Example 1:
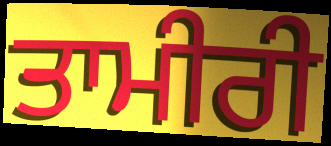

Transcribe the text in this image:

ਤਾਮੀਰੀ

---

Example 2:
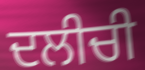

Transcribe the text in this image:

ਦਲੀਚੀ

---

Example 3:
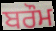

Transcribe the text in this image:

ਬਰੌਮ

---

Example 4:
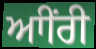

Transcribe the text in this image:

ਆੀਂਰੀ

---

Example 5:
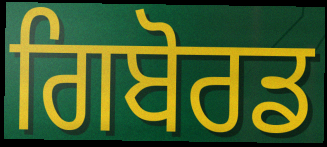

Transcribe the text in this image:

ਗਿਬੋਰਡ